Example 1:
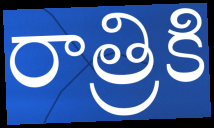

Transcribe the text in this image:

రాత్రికి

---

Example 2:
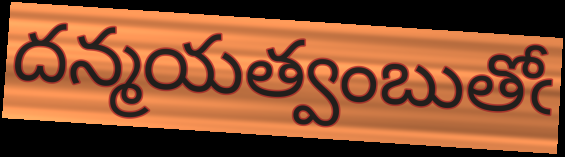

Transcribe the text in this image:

దన్మయత్వంబుతోఁ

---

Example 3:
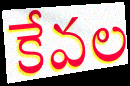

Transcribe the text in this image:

కేవల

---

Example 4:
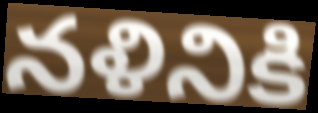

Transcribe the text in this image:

నళినికి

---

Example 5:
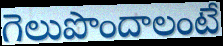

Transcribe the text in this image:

గెలుపొందాలంటే